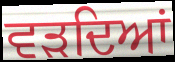
ਵੜਦਿਆਂ